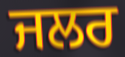
ਜਲਰ